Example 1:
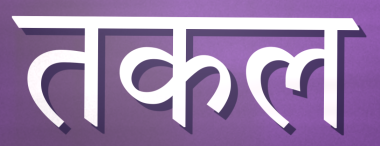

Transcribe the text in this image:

तकल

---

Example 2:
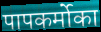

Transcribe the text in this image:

पापकर्मोका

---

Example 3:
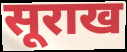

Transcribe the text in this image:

सूराख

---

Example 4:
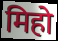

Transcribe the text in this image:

मिहो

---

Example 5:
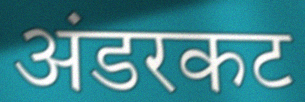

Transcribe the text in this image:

अंडरकट